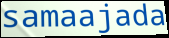
samaajada